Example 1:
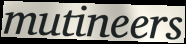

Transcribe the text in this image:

mutineers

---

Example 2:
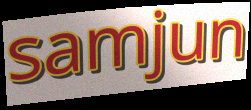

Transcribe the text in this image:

samjun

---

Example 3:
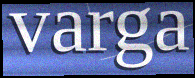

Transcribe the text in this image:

varga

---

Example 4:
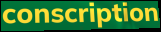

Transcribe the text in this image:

conscription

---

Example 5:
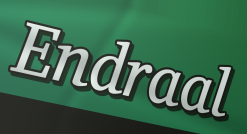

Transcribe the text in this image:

Endraal